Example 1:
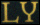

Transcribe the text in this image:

LY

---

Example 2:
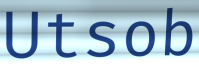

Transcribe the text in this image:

Utsob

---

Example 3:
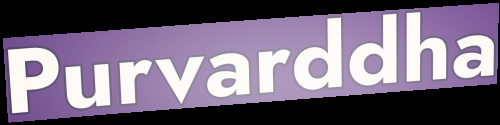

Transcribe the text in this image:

Purvarddha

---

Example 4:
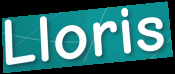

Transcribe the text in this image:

Lloris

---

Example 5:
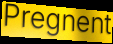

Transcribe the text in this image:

Pregnent